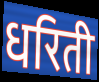
धरिती